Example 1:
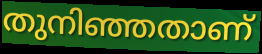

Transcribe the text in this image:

തുനിഞ്ഞതാണ്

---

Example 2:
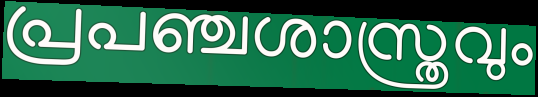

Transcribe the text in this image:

പ്രപഞ്ചശാസ്ത്രവും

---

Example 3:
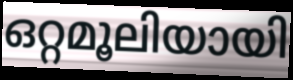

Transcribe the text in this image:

ഒറ്റമൂലിയായി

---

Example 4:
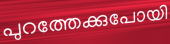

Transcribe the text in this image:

പുറത്തേക്കുപോയി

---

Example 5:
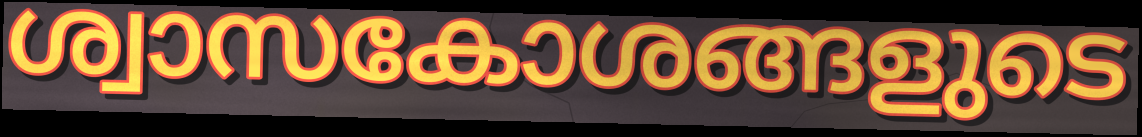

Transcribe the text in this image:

ശ്വാസകോശങ്ങളുടെ